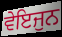
ਵੇਇਜੁਨ